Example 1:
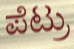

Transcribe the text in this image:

ಪೆಟ್ರು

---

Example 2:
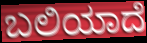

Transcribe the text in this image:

ಬಲಿಯಾದೆ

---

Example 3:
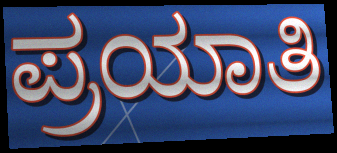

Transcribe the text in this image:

ಪ್ರಯಾತಿ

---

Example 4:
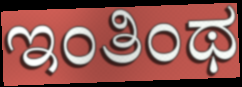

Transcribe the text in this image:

ಇಂತಿಂಥ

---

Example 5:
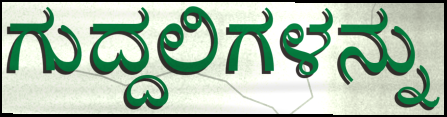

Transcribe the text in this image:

ಗುದ್ದಲಿಗಳನ್ನು